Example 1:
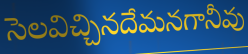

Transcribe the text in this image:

సెలవిచ్చినదేమనగానీవు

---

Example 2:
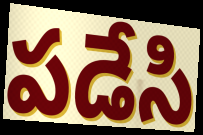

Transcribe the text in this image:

పడేసి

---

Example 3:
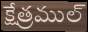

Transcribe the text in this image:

క్షేత్రముల్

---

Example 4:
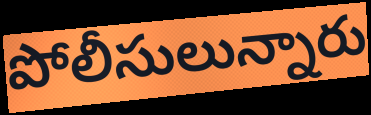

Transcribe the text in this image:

పోలీసులున్నారు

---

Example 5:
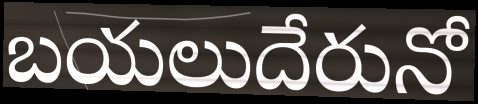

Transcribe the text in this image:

బయలుదేరునో